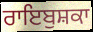
ਰਾਇਬੁਸ਼ਕਾ